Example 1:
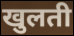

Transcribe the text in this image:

खुलती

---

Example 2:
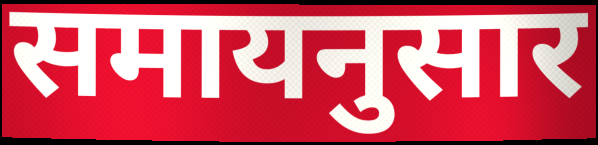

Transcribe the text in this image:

समायनुसार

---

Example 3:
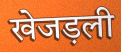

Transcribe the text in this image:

खेजड़ली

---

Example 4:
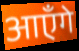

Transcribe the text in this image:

आएँगे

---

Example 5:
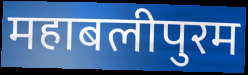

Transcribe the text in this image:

महाबलीपुरम